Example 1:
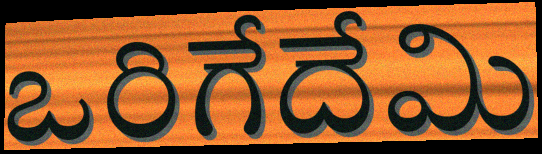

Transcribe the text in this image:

ఒరిగేదేమి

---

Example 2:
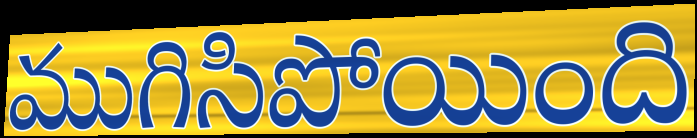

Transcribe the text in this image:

ముగిసిపోయింది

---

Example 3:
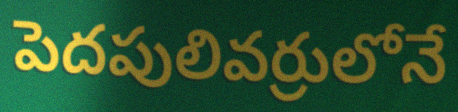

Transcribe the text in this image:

పెదపులివర్రులోనే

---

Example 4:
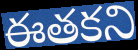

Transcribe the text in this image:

ఈతకని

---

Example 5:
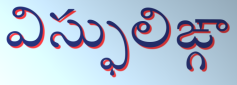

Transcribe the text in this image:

విస్ఫులిఙ్గా